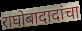
राघोबादादांचा